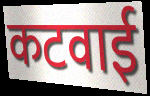
कटवाई